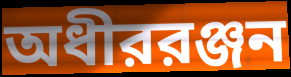
অধীররঞ্জন